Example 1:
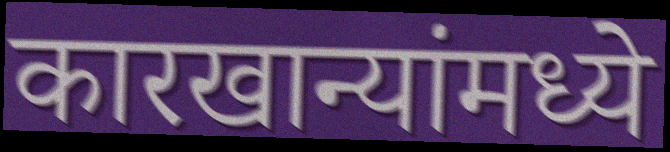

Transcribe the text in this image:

कारखान्यांमध्ये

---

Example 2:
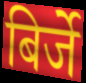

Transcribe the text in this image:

बिर्जे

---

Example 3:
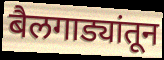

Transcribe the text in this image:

बैलगाड्यांतून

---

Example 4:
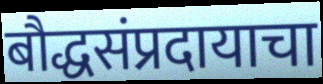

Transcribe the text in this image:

बौद्धसंप्रदायाचा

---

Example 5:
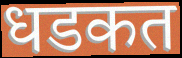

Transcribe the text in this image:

धडकत